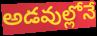
అడవుల్లోనే